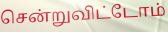
சென்றுவிட்டோம்